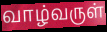
வாழ்வருள்